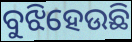
ବୁଝିହେଉଛି